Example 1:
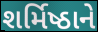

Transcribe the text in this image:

શર્મિષ્ઠાને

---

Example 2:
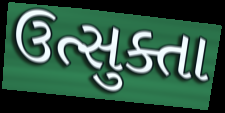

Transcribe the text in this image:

ઉત્સુક્તા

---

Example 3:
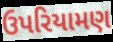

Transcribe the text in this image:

ઉપરિયામણ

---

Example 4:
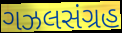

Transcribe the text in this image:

ગઝલસંગ્રહ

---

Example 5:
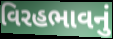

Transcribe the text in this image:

વિરહભાવનું